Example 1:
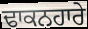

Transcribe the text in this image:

ਢਾਕਨਹਾਰੇ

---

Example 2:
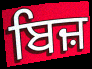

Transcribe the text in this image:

ਬਿਜ਼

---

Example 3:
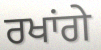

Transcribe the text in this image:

ਰਖਾਂਗੇ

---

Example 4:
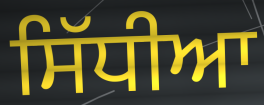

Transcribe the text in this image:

ਸਿੱਧੀਆ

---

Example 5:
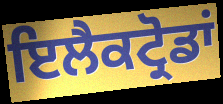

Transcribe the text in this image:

ਇਲੈਕਟ੍ਰੋਡਾਂ